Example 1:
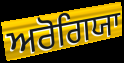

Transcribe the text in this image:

ਅਰੋਗਿਯਾ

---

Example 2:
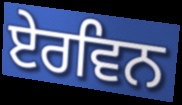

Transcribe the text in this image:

ਏਰਵਿਨ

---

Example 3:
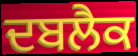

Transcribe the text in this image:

ਦਬਲੈਕ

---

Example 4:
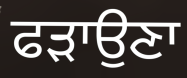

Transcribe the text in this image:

ਫੜਾਉਣਾ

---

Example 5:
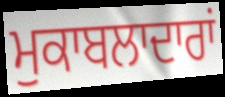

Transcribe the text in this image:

ਮੁਕਾਬਲਾਦਾਰਾਂ